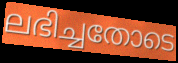
ലഭിച്ചതോടെ